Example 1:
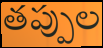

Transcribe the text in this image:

తప్పుల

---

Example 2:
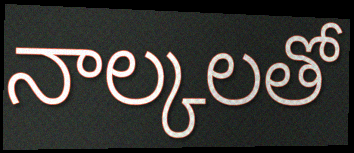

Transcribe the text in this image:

నాల్కలతో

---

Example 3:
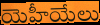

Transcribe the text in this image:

యెహీయేలు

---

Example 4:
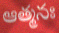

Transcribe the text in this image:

ఆత్మనః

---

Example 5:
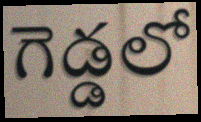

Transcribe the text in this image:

గెడ్డలో